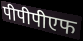
पीपीपीएफ